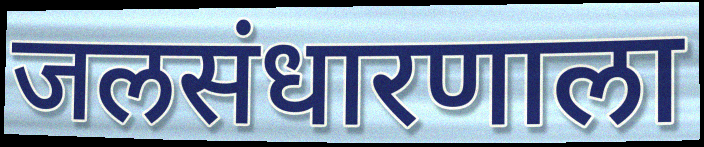
जलसंधारणाला